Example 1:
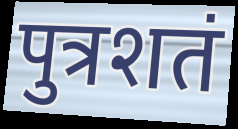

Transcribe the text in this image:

पुत्रशतं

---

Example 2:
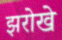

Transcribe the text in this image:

झरोखे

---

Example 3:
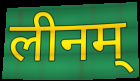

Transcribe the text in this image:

लीनम्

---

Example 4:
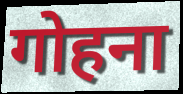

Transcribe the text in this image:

गोहना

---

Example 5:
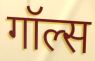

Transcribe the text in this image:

गॉल्स